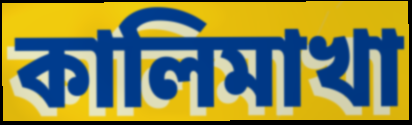
কালিমাখা